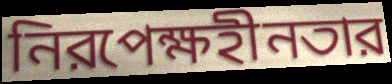
নিরপেক্ষহীনতার